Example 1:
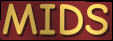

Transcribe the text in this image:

MIDS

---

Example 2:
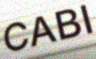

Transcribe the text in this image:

CABI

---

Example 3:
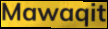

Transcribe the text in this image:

Mawaqit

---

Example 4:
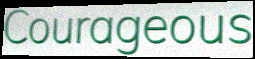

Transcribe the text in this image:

Courageous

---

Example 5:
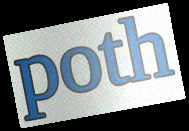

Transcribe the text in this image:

poth